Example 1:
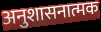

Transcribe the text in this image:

अनुशासनात्मक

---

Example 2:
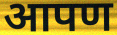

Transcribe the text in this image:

आपण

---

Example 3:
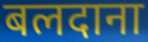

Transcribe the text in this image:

बलदाना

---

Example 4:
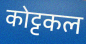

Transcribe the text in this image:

कोट्टकल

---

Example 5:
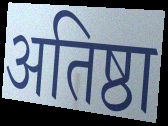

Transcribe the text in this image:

अतिष्ठा